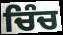
ਚਿੰਚ